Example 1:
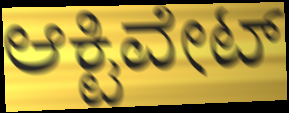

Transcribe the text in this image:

ಆಕ್ಟಿವೇಟ್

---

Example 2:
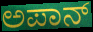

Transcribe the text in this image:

ಅಪಾನ್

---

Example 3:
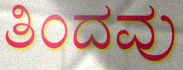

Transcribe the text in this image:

ತಿಂದವು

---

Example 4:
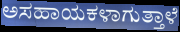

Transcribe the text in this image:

ಅಸಹಾಯಕಳಾಗುತ್ತಾಳೆ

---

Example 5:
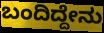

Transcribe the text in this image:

ಬಂದಿದ್ದೇನು